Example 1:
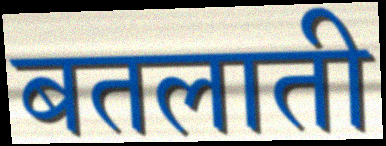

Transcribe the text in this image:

बतलाती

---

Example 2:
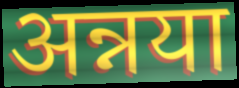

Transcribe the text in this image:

अन्नया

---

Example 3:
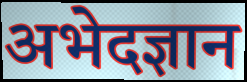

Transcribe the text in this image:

अभेदज्ञान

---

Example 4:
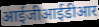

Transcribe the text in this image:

आईजीआईडीआर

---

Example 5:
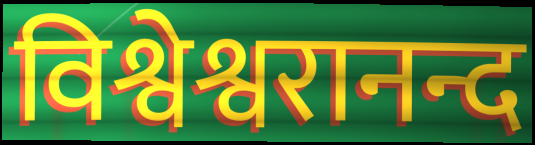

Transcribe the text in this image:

विश्वेश्वरानन्द